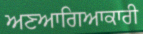
ਅਣਆਗਿਆਕਾਰੀ